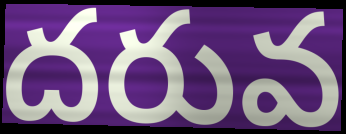
దరువ